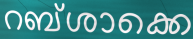
റബ്ശാക്കെ